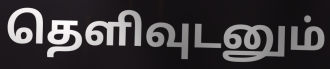
தெளிவுடனும்